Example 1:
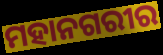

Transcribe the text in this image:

ମହାନଗରୀର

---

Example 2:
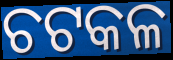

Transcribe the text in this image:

ଚଟକଳ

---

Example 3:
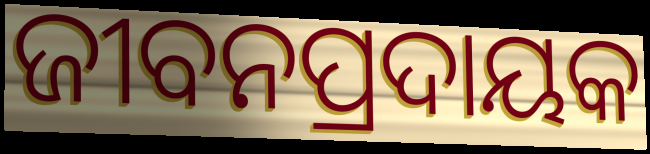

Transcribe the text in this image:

ଜୀବନପ୍ରଦାୟକ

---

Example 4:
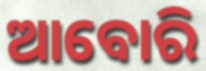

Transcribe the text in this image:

ଆବୋରି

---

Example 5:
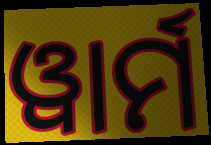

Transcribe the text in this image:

ୱାର୍ମ